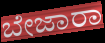
ಬೇಜಾರಾ